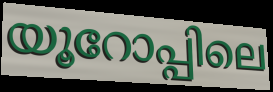
യൂറോപ്പിലെ